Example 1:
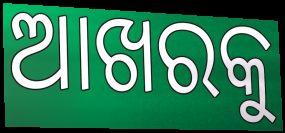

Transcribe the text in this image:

ଆଖରକୁ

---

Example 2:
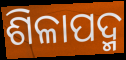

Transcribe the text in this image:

ଶିଳାପଦ୍ମ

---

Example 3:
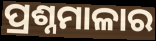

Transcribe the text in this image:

ପ୍ରଶ୍ନମାଳାର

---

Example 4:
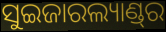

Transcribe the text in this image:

ସୁଇଜାରଲ୍ୟାଣ୍ଡ୍‌ର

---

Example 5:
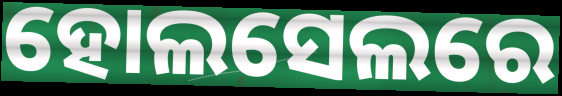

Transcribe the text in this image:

ହୋଲସେଲରେ